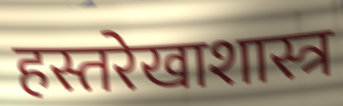
हस्तरेखाशास्त्र